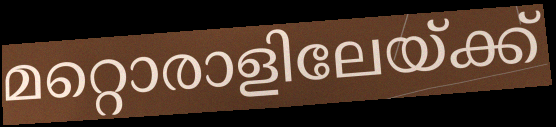
മറ്റൊരാളിലേയ്ക്ക്